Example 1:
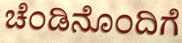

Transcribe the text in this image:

ಚೆಂಡಿನೊಂದಿಗೆ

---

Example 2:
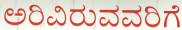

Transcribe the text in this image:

ಅರಿವಿರುವವರಿಗೆ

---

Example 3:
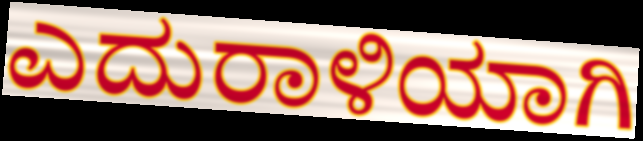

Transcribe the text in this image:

ಎದುರಾಳಿಯಾಗಿ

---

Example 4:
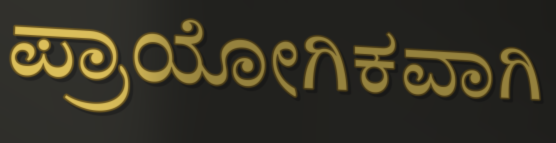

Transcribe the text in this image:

ಪ್ರಾಯೋಗಿಕವಾಗಿ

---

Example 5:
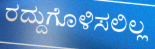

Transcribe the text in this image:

ರದ್ದುಗೊಳಿಸಲಿಲ್ಲ